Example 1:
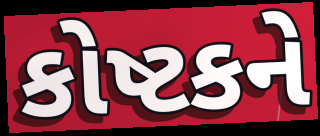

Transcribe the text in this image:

કોષ્ટકને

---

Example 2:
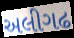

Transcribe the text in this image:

અલીગઢ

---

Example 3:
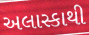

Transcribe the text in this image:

અલાસ્કાથી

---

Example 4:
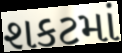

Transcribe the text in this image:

શકટમાં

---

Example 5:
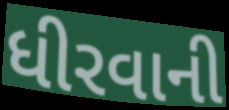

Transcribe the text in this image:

ધીરવાની